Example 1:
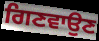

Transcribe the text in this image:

ਗਿਣਵਾਉਣ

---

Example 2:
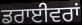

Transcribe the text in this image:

ਡਰਾਈਵਰਾਂ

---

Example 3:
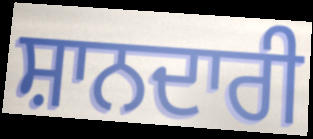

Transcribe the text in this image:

ਸ਼ਾਨਦਾਰੀ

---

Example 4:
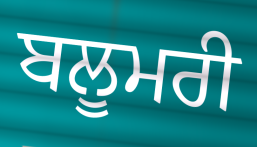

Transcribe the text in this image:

ਬਲੂਮਰੀ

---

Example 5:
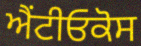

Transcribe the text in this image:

ਐਂਟੀਓਕੋਸ